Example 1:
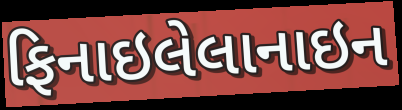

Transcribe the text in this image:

ફિનાઇલેલાનાઇન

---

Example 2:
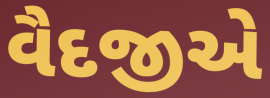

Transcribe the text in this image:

વૈદજીએ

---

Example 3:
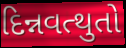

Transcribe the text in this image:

દિન્નવત્થુતો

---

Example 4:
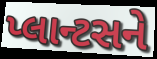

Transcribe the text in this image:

પ્લાન્ટસને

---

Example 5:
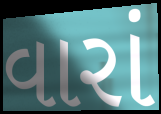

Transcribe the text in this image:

વારાં